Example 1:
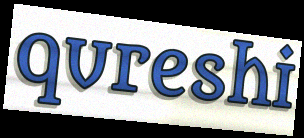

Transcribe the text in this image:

qureshi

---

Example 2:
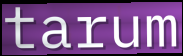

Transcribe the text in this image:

tarum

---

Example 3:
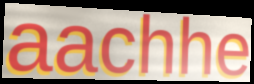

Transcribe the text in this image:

aachhe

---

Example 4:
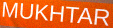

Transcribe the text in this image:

MUKHTAR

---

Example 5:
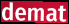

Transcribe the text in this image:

demat